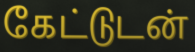
கேட்டுடன்